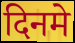
दिनमे